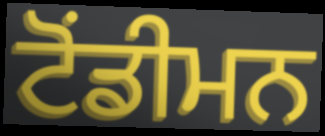
ਟੋਂਡੀਮਨ